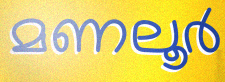
മണലൂർ